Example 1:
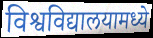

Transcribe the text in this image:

विश्वविद्यालयामध्ये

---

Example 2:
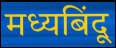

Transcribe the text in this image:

मध्यबिंदू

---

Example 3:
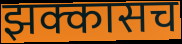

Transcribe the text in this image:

झक्कासच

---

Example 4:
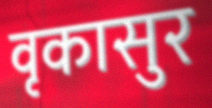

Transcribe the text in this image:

वृकासुर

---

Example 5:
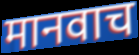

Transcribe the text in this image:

मानवाच